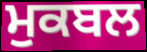
ਮੁਕਬਲ